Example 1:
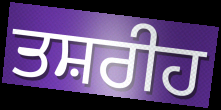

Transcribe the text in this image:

ਤਸ਼ਰੀਹ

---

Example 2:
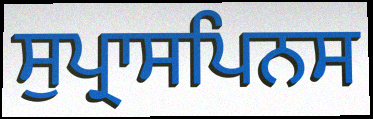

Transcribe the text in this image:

ਸੁਪ੍ਰਾਸਪਿਨਸ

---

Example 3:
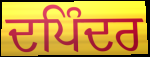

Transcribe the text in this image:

ਦਪਿੰਦਰ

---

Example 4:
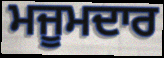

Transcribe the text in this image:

ਮਜੂਮਦਾਰ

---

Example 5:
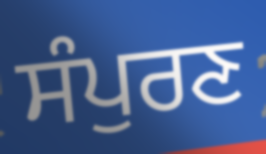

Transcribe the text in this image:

ਸੰਪੁਰਣ